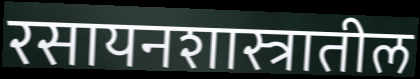
रसायनशास्त्रातील